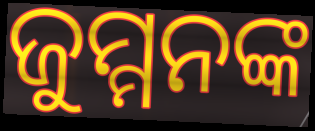
ଜୁମ୍ମନଙ୍କ